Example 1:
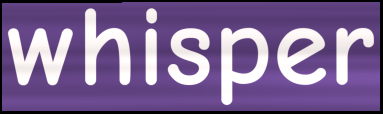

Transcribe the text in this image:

whisper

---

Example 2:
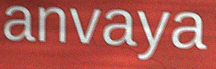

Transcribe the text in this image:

anvaya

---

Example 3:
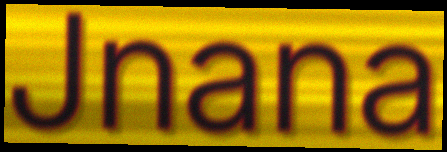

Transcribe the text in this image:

Jnana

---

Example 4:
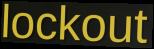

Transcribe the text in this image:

lockout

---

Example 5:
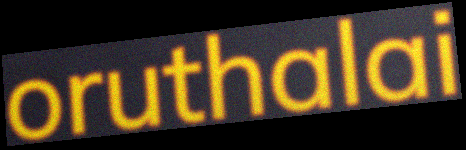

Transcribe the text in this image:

oruthalai